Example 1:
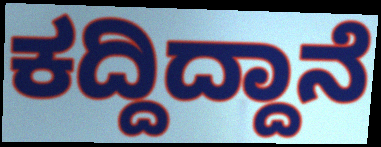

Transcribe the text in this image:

ಕದ್ದಿದ್ದಾನೆ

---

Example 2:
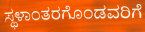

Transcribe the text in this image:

ಸ್ಥಳಾಂತರಗೊಂಡವರಿಗೆ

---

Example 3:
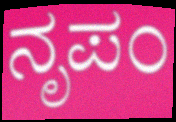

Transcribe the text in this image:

ನೃಪಂ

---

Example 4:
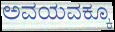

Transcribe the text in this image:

ಅವಯವಕ್ಕೂ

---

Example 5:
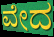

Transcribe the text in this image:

ವೇದ